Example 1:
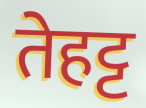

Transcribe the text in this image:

तेहट्ट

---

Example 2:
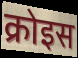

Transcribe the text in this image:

क्रोइस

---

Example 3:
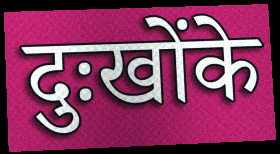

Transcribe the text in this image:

दुःखोंके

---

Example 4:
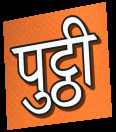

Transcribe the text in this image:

पुट्ठी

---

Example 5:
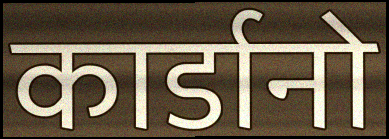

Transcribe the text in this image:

कार्डानो